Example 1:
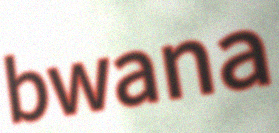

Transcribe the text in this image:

bwana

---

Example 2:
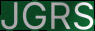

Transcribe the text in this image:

JGRS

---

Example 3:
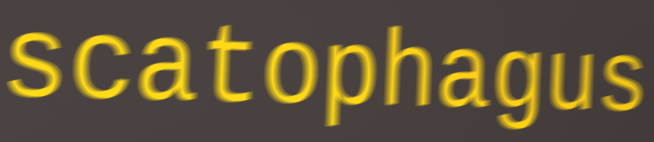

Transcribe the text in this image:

scatophagus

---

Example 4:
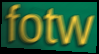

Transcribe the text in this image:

fotw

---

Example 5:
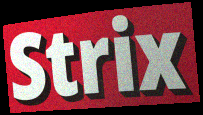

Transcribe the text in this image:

Strix